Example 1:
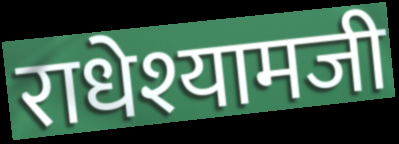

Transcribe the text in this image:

राधेश्यामजी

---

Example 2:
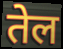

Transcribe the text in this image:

तेल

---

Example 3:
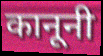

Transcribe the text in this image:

कानूनी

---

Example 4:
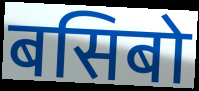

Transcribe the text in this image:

बसिबो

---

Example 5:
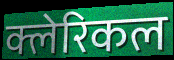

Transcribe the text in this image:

क्लेरिकल